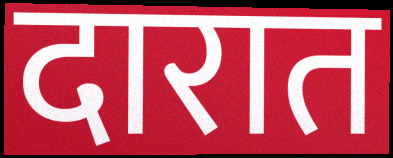
दारात